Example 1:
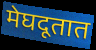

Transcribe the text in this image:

मेघदूतात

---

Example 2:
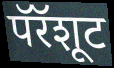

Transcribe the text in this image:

पॅरॅशूट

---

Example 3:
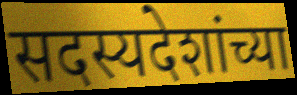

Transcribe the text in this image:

सदस्यदेशांच्या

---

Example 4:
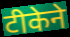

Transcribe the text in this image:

टीकेने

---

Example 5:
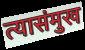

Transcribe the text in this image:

त्यासंमुख